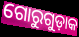
ଗୋରୁଗୁଡ଼ାକ